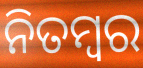
ନିତମ୍ୱର